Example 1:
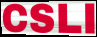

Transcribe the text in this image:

CSLI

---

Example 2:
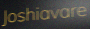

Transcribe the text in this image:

Joshiavare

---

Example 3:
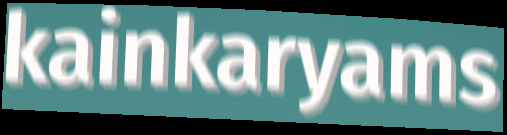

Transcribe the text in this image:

kainkaryams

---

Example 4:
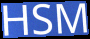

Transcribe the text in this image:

HSM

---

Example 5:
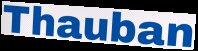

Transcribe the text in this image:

Thauban